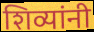
शिव्यांनी